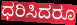
ಧರಿಸಿದರೂ